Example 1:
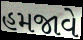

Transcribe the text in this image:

હમજાવે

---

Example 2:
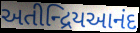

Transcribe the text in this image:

અતીન્દ્રિયઆનંદ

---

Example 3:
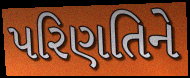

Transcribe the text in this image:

પરિણતિને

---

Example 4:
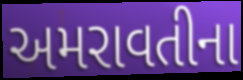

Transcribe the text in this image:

અમરાવતીના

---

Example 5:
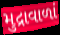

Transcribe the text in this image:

મુદ્રાવાળાં